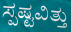
ಸ್ಪಷ್ಟವಿತ್ತು